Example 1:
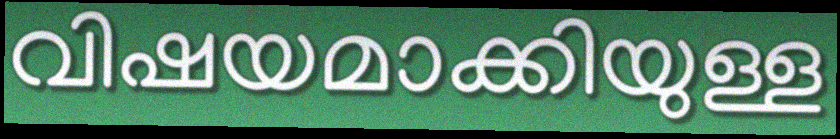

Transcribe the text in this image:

വിഷയമാക്കിയുള്ള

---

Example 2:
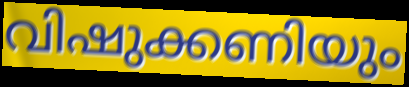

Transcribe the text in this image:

വിഷുക്കണിയും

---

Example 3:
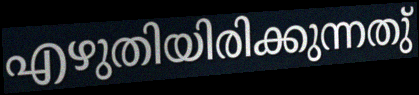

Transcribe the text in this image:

എഴുതിയിരിക്കുന്നതു്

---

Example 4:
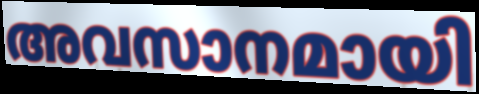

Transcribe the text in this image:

അവസാനമായി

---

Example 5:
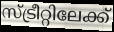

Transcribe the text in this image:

സ്ട്രീറ്റിലേക്ക്